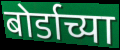
बोर्डाच्या